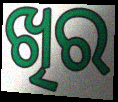
ଖିର